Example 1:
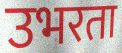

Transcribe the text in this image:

उभरता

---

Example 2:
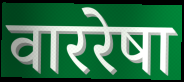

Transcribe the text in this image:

वाररेषा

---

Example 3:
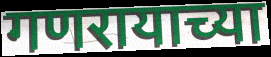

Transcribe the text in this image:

गणरायाच्या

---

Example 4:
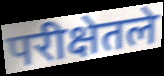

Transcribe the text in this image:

परीक्षेतले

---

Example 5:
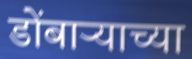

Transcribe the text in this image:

डोंबाऱ्याच्या